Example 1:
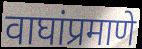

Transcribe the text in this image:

वाघांप्रमाणे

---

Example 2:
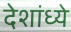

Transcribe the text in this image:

देशांध्ये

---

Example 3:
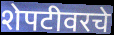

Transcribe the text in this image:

शेपटीवरचे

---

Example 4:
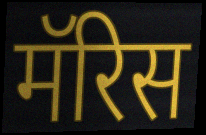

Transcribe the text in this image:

मॅरिस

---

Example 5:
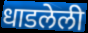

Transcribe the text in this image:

धाडलेली